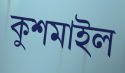
কুশমাইল